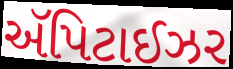
ઍપિટાઈઝર